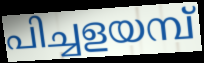
പിച്ചളയമ്പ്